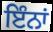
ਇੰਨਾਂ